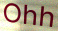
Ohh